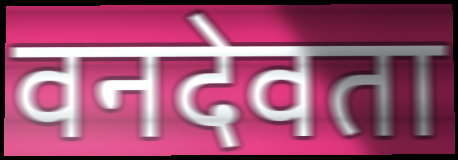
वनदेवता